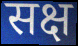
सक्ष